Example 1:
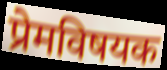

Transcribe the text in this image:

प्रेमविषयक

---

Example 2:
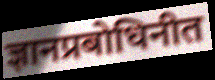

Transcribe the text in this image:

ज्ञानप्रबोधिनीत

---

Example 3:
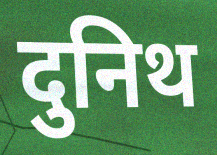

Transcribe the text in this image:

दुनिथ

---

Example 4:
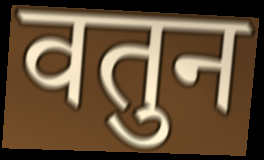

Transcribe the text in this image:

वतुन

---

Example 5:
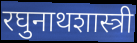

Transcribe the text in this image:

रघुनाथशास्त्री